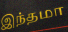
இந்தமா